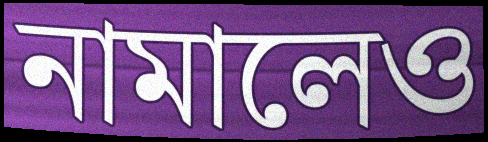
নামালেও